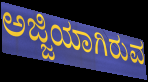
ಅಜ್ಜಿಯಾಗಿರುವ